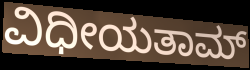
ವಿಧೀಯತಾಮ್